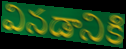
వినడానికి